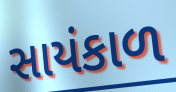
સાયંકાળ